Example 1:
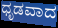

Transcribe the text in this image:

ಧೃಡವಾದ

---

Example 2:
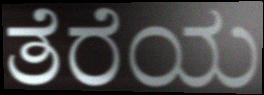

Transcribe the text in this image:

ತೆರೆಯ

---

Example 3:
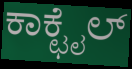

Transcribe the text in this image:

ಕಾಕ್ಟೈಲ್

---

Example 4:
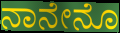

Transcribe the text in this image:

ನಾನೇನೊ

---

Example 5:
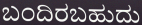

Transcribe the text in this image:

ಬಂದಿರಬಹುದು